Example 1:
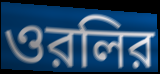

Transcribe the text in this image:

ওরলির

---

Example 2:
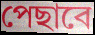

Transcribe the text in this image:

পেছাবে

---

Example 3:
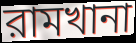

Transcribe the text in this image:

রামখানা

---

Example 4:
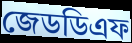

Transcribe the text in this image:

জেডডিএফ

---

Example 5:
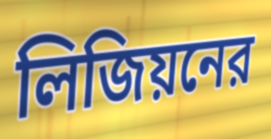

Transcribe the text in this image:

লিজিয়নের